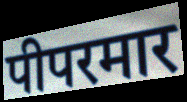
पीपरमार